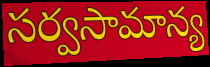
సర్వసామాన్య